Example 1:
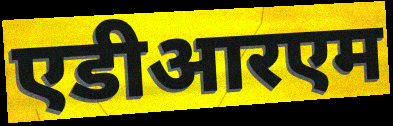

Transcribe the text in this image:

एडीआरएम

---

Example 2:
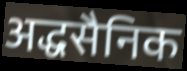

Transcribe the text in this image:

अद्धसैनिक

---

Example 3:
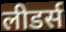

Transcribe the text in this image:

लीडर्स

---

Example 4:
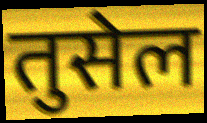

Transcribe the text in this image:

तुसेल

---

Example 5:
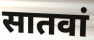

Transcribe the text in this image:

सातवां